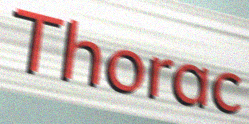
Thorac